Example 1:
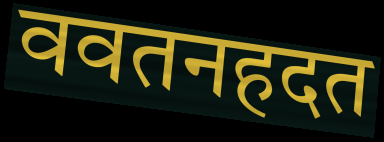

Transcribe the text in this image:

ववतनहदत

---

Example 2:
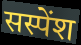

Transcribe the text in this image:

सस्पेंश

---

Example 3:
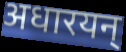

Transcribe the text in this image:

अधारयन्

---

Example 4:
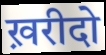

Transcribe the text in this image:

ख़रीदो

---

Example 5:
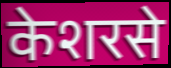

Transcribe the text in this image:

केशरसे